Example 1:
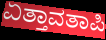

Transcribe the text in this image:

ಏತ್ತಾವತಾಪಿ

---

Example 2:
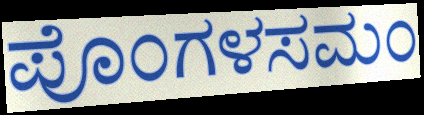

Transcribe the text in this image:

ಪೊಂಗಳಸಮಂ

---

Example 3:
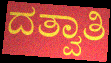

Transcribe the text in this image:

ದತ್ವಾತಿ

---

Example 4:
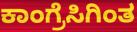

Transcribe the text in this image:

ಕಾಂಗ್ರೆಸಿಗಿಂತ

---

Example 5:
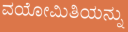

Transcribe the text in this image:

ವಯೋಮಿತಿಯನ್ನು